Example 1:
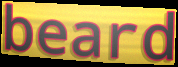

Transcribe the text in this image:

beard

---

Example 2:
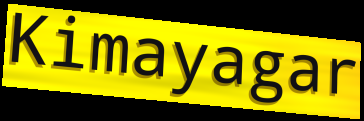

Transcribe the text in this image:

Kimayagar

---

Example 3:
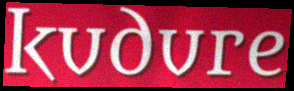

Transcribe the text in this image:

kudure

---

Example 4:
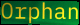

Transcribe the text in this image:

Orphan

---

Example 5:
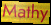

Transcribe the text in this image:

Mathy